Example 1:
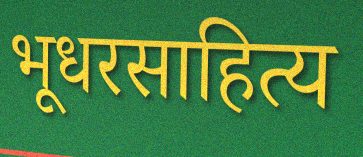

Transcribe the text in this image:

भूधरसाहित्य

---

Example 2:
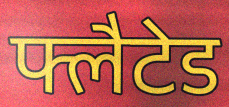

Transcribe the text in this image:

फ्लैटेड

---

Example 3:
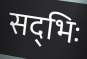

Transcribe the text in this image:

सद्भिः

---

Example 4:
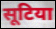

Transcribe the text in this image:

सूटिया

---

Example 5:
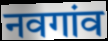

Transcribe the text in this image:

नवगांव